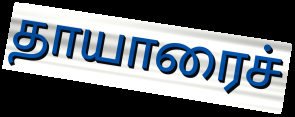
தாயாரைச்